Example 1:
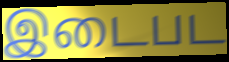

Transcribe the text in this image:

இடைபட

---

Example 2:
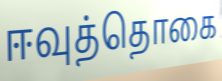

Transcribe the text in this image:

ஈவுத்தொகை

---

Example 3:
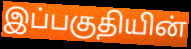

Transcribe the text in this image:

இப்பகுதியின்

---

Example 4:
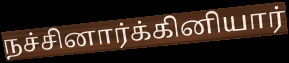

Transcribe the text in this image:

நச்சினார்க்கினியார்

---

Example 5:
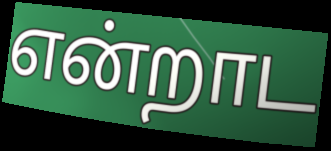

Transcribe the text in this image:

என்றாட